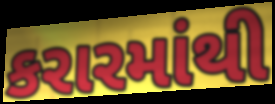
કરારમાંથી